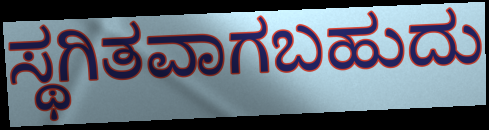
ಸ್ಥಗಿತವಾಗಬಹುದು